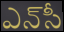
ఎన్‌సీ